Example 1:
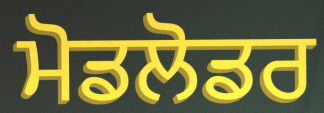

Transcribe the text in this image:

ਮੋਡਲੋਡਰ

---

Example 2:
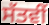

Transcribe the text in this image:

ਸੱਤਵੀਂ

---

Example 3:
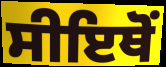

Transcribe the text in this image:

ਸੀਇਥੋਂ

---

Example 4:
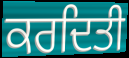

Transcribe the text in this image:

ਕਰਦਿਤੀ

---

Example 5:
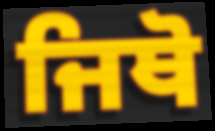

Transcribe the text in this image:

ਜਿਥੋ